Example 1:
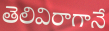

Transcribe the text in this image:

తెలివిరాగానే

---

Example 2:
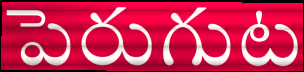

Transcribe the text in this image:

పెరుగుట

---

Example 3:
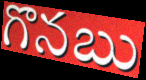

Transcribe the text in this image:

గొనబు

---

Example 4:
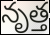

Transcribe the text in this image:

నృత్త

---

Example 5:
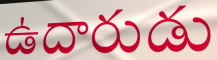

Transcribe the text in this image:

ఉదారుడు